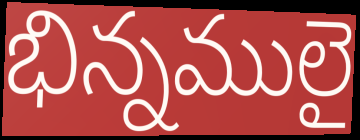
భిన్నములై